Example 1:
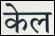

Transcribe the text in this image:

केल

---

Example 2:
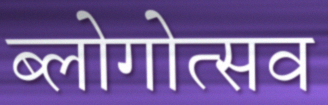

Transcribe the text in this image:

ब्लोगोत्सव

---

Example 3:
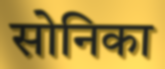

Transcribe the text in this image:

सोनिका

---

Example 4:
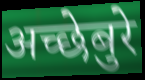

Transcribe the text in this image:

अच्छेबुरे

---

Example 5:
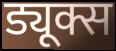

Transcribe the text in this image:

ड्यूक्स